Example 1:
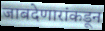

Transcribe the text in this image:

जाबदेणारांकडून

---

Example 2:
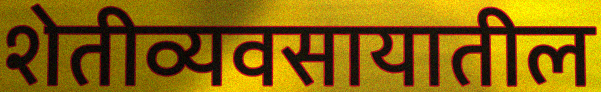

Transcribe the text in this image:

शेतीव्यवसायातील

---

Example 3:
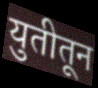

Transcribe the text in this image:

युतीतून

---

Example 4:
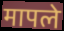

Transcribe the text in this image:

मापले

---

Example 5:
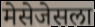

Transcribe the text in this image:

मेसेजेसला